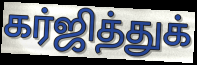
கர்ஜித்துக்